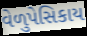
વેળુપેસિકાય